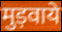
मुड़वाये